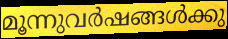
മൂന്നുവർഷങ്ങൾക്കു